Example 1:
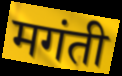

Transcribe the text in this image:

मगंती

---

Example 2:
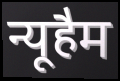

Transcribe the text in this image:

न्यूहैम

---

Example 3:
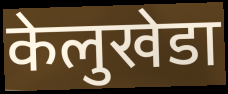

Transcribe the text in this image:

केलुखेडा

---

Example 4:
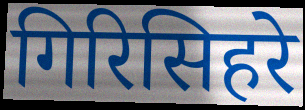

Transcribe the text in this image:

गिरिसिहरे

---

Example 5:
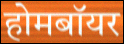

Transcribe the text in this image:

होमबॉयर